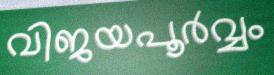
വിജയപൂർവ്വം